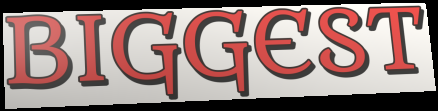
BIGGEST